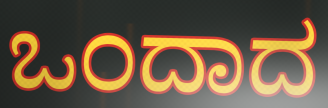
ಒಂದಾದ